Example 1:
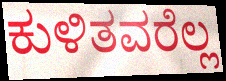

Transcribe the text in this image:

ಕುಳಿತವರೆಲ್ಲ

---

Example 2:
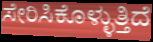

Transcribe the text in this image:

ಸೇರಿಸಿಕೊಳ್ಳುತ್ತಿದೆ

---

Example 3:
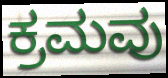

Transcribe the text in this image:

ಕ್ರಮವು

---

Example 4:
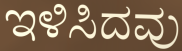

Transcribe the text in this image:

ಇಳಿಸಿದವು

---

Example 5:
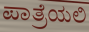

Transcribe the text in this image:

ಪಾತ್ರೆಯಲಿ